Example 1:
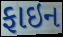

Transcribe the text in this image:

ફાઇન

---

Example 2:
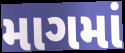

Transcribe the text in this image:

માગમાં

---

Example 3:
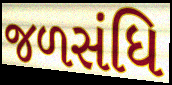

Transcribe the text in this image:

જળસંધિ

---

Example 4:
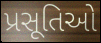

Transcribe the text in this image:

પ્રસૂતિઓ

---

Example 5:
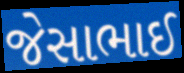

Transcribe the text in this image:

જેસાભાઈ